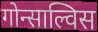
गोन्साल्विस